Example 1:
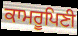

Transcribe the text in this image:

ਕਾਮਰੂਪਿਣੀ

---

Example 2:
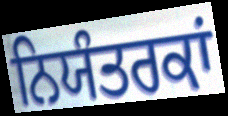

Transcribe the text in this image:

ਨਿਯੰਤਰਕਾਂ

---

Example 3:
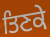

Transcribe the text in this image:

ਤਿਣਕੇ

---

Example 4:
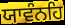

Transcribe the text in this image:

ਯਾਵੰਨਹਿ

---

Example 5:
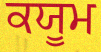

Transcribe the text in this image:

ਕਯੂਮ